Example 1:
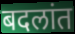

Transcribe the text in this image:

बदलांत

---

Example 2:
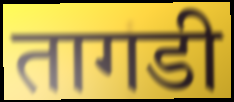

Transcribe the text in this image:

तागडी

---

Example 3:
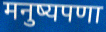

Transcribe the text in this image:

मनुष्यपणा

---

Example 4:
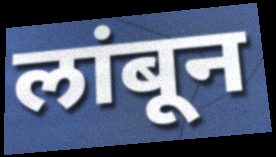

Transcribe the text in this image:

लांबून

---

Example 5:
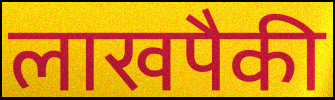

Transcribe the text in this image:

लाखपैकी